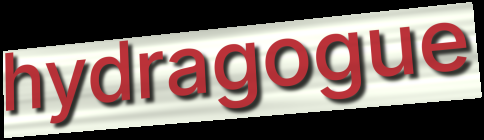
hydragogue